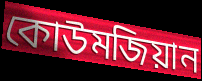
কোউমজিয়ান